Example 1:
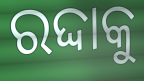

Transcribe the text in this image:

ରଦ୍ଦାକୁ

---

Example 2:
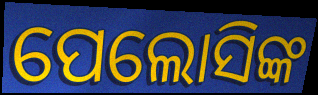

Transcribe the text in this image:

ପେଲୋସିଙ୍କ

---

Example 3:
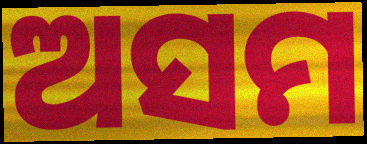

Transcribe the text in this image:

ଅସମ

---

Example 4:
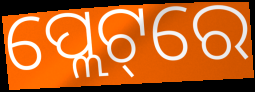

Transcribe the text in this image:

ପ୍ଲେଟ୍‌ରେ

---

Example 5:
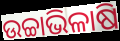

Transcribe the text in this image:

ଉଚ୍ଚାଭିଳାଷି